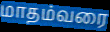
மாதம்வரை